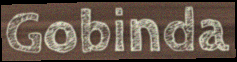
Gobinda